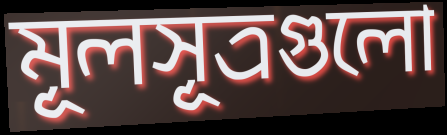
মূলসূত্রগুলো